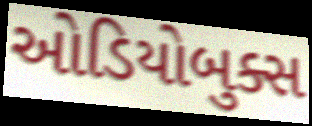
ઓડિયોબુક્સ